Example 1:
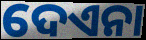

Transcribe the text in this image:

ଦେଏନା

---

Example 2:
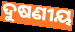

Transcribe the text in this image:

ଦୁଷଣୀୟ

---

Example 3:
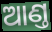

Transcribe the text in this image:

ଆଣ୍ତ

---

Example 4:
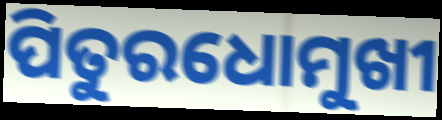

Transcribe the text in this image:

ପିତୁରଧୋମୁଖୀ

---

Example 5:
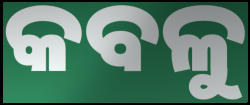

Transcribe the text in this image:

କବଳୁ